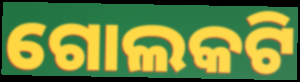
ଗୋଲକଟି